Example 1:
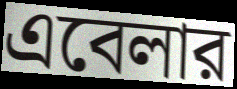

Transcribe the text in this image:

এবেলার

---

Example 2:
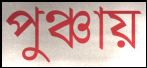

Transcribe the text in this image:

পুঞ্চায়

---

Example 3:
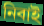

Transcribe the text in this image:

নিবাই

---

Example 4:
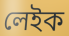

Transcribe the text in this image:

লেইক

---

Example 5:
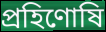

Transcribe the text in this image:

প্রহিণোষি